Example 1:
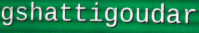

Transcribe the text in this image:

gshattigoudar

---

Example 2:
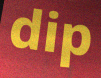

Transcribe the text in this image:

dip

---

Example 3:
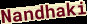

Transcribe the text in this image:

Nandhaki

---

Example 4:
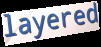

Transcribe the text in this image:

layered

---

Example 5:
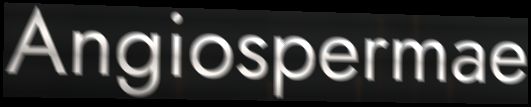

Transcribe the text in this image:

Angiospermae